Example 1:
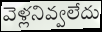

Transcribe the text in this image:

వెళ్లనివ్వలేదు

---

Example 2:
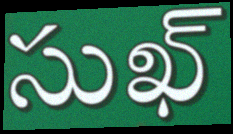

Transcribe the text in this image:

సుఖ్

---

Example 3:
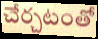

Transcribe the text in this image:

చేర్చటంతో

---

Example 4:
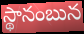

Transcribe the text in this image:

స్థానంబున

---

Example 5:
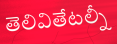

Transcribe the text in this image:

తెలివితేటల్నీ